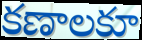
కణాలకూ